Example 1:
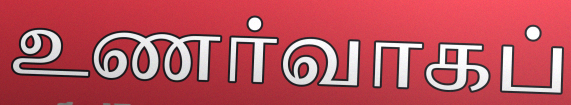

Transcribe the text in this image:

உணர்வாகப்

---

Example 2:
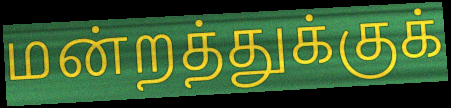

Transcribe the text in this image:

மன்றத்துக்குக்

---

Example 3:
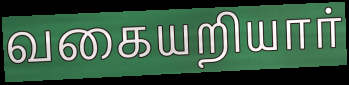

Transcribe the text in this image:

வகையறியார்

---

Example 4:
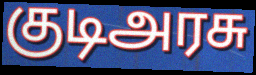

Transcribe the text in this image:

குடிஅரசு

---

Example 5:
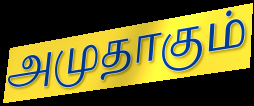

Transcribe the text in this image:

அமுதாகும்